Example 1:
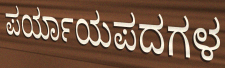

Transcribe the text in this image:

ಪರ್ಯಾಯಪದಗಳ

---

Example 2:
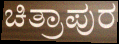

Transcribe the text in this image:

ಚಿತ್ರಾಪುರ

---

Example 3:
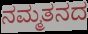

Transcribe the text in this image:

ನಮ್ಮತನದ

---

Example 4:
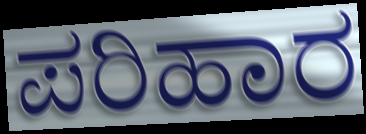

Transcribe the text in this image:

ಪರಿಹಾರ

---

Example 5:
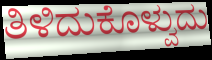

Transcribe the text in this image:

ತಿಳಿದುಕೊಳ್ವುದು